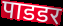
पाडडर